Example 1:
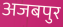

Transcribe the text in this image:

अजबपुर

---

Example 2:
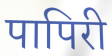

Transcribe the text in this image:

पापिरी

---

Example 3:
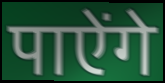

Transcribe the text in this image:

पाऐंगे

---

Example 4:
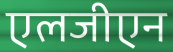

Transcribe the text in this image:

एलजीएन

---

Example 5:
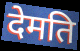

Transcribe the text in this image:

देमति